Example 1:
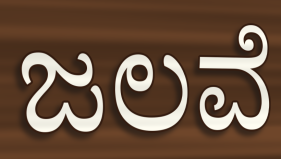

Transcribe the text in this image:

ಜಲವೆ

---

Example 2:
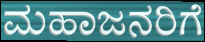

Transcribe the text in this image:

ಮಹಾಜನರಿಗೆ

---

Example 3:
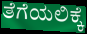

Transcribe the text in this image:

ತೆಗೆಯಲಿಕ್ಕೆ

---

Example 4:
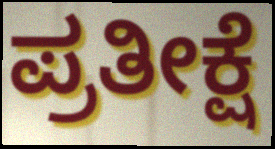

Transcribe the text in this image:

ಪ್ರತೀಕ್ಷೆ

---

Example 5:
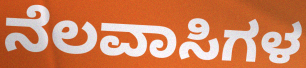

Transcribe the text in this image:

ನೆಲವಾಸಿಗಳ